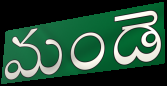
మండె